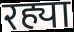
रह्या